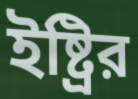
ইষ্ট্রির